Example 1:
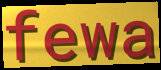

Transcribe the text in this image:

fewa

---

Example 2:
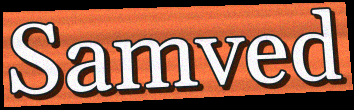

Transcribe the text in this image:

Samved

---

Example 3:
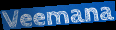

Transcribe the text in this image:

Veemana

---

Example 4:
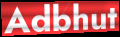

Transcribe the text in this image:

Adbhut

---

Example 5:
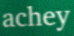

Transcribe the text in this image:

achey